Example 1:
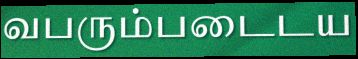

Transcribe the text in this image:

வபரும்படைடய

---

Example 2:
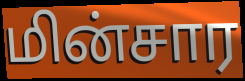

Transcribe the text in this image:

மின்சார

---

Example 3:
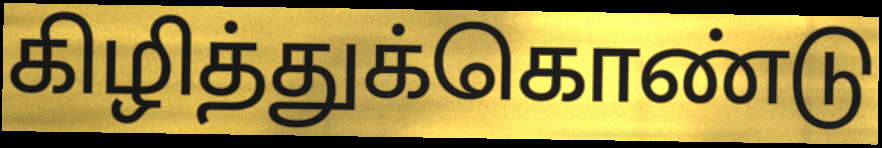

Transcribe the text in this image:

கிழித்துக்கொண்டு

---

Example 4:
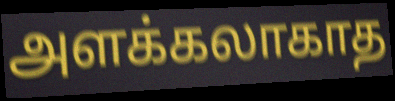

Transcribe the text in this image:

அளக்கலாகாத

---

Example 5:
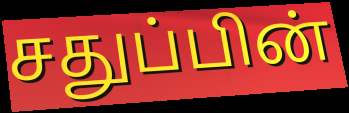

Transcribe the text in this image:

சதுப்பின்